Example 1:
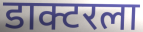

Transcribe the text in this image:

डाक्टरला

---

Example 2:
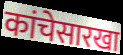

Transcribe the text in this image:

कांचेसारखा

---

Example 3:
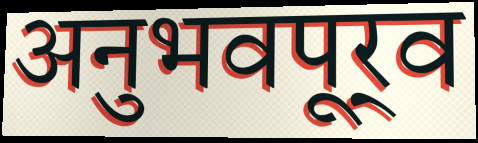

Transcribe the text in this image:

अनुभवपूर्व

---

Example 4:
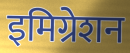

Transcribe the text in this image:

इमिग्रेशन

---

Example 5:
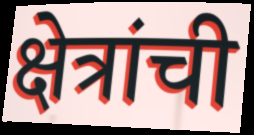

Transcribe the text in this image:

क्षेत्रांची